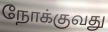
நோக்குவது